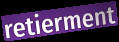
retierment